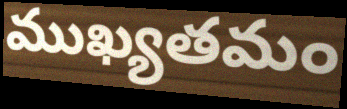
ముఖ్యతమం